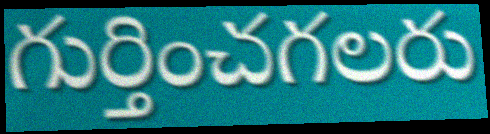
గుర్తించగలరు